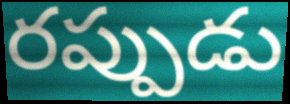
రప్పుడు